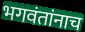
भगवंतांनाच